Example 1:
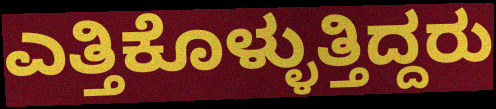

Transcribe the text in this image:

ಎತ್ತಿಕೊಳ್ಳುತ್ತಿದ್ದರು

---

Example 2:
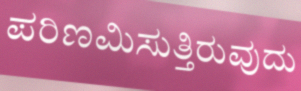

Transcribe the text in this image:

ಪರಿಣಮಿಸುತ್ತಿರುವುದು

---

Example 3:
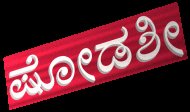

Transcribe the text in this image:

ಷೋಡಶೀ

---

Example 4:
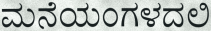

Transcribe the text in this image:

ಮನೆಯಂಗಳದಲಿ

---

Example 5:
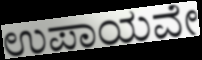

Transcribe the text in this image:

ಉಪಾಯವೇ